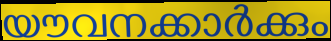
യൗവനക്കാർക്കും